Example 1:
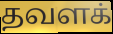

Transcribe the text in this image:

தவளக்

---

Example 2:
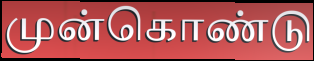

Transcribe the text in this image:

முன்கொண்டு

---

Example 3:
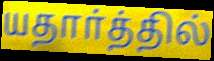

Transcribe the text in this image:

யதார்த்தில்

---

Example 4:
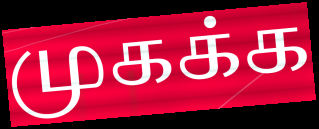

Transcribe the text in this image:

முகக்க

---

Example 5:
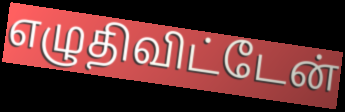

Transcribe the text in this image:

எழுதிவிட்டேன்